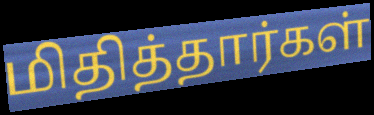
மிதித்தார்கள்